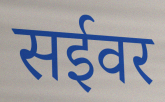
सईवर